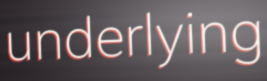
underlying